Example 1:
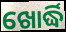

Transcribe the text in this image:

ଖୋର୍ଦ୍ଧି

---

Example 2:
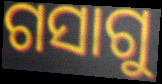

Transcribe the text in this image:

ଗସାଗୁ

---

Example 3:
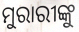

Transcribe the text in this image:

ମୁରାରୀଙ୍କୁ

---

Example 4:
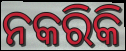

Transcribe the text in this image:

ନକରିକି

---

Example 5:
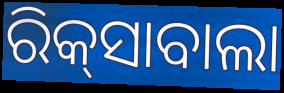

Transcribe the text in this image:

ରିକ୍‌ସାବାଲା